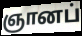
ஞானப்